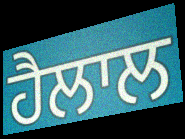
ਹੈਲਾਲ